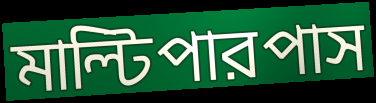
মাল্টিপারপাস